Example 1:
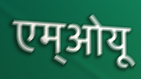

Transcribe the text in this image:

एम्ओयू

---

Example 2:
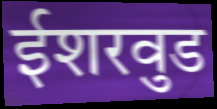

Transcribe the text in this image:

ईशरवुड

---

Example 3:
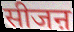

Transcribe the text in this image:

सीजऩ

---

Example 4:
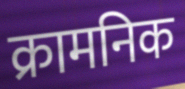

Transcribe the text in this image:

क्रामनिक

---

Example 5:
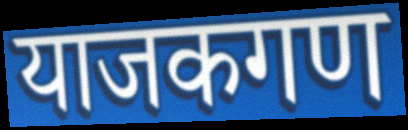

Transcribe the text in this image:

याजकगण